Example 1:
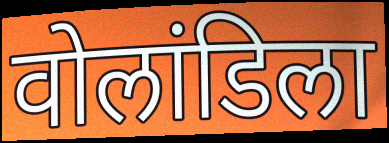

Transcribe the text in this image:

वोलांडिला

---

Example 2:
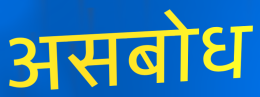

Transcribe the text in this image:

असबोध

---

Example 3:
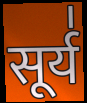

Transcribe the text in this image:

सूर्य॑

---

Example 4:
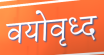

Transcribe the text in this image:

वयोवृध्द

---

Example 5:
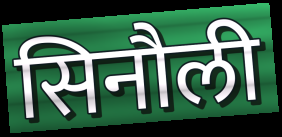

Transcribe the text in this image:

सिनौली